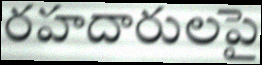
రహదారులపై